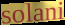
solani